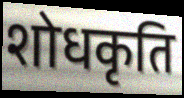
शोधकृति